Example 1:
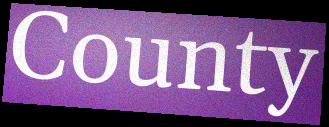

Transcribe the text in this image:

County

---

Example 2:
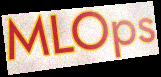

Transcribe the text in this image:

MLOps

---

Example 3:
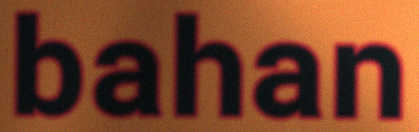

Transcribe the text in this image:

bahan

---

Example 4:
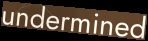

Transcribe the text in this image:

undermined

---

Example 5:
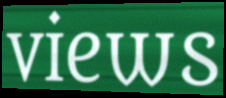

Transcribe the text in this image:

views